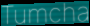
Tumcha